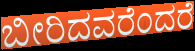
ಬೀರಿದವರೆಂದರೆ